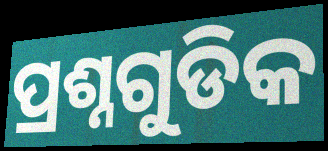
ପ୍ରଶ୍ନଗୁଡିକ